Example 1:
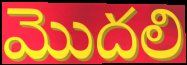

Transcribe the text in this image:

మొదలి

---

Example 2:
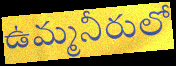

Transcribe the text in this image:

ఉమ్మనీరులో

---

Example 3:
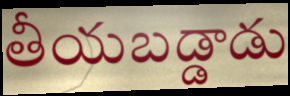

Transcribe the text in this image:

తీయబడ్డాడు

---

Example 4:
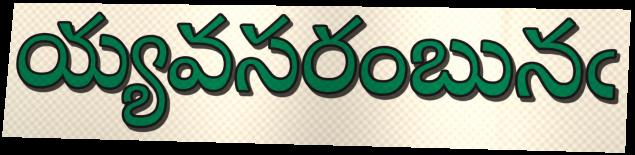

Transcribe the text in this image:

య్యవసరంబునఁ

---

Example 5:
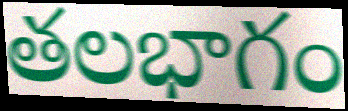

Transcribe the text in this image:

తలభాగం